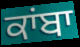
ਕਾਂਬਾ